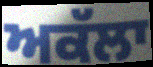
ਅਕੱਲਾ